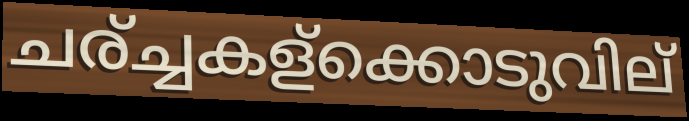
ചര്ച്ചകള്ക്കൊടുവില്